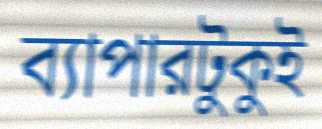
ব্যাপারটুকুই